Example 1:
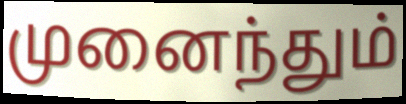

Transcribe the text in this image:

முனைந்தும்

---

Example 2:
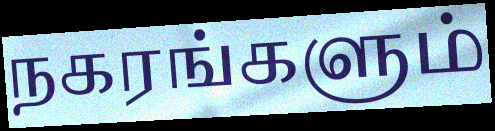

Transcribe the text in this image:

நகரங்களும்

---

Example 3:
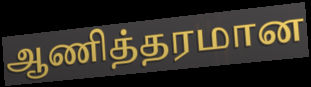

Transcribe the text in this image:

ஆணித்தரமான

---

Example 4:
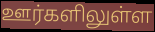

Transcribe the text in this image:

ஊர்களிலுள்ள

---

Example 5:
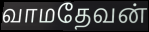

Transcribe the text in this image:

வாமதேவன்